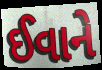
ઈવાને